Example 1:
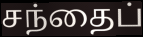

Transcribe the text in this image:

சந்தைப்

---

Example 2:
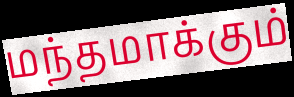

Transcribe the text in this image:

மந்தமாக்கும்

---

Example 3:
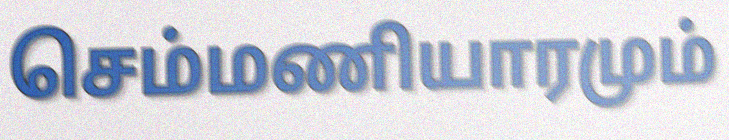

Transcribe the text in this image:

செம்மணியாரமும்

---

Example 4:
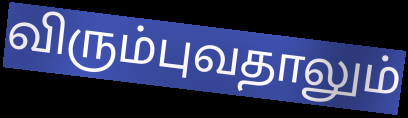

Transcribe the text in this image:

விரும்புவதாலும்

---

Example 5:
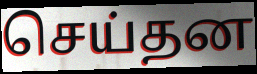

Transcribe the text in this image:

செய்தன